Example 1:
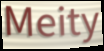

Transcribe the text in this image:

Meity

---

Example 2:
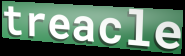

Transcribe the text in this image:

treacle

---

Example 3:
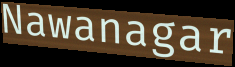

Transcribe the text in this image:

Nawanagar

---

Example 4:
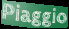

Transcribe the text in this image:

Piaggio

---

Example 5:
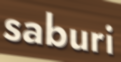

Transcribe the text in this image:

saburi